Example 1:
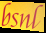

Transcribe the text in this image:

bsnl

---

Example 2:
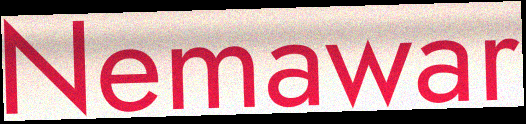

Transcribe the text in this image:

Nemawar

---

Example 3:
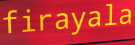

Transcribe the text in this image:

firayala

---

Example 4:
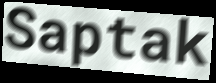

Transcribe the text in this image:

Saptak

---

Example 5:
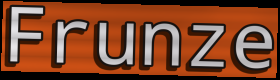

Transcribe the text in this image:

Frunze